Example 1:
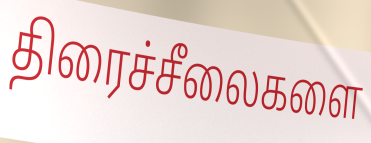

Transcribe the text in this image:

திரைச்சீலைகளை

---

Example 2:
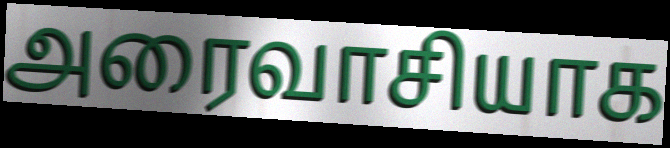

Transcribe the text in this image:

அரைவாசியாக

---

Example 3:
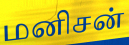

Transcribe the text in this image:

மனிசன்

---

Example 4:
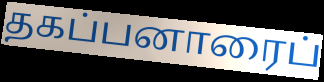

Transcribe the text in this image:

தகப்பனாரைப்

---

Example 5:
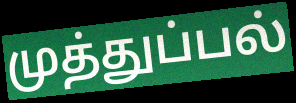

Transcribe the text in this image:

முத்துப்பல்